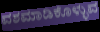
ವಶಮಾಡಿಕೊಳ್ಳುವ